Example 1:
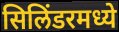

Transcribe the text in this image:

सिलिंडरमध्ये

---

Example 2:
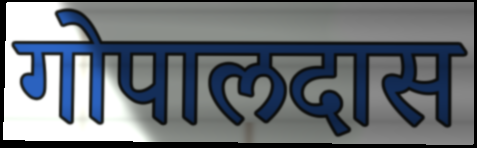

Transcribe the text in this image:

गोपालदास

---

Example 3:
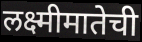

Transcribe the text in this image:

लक्ष्मीमातेची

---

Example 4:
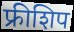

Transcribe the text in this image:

फ्रीशिप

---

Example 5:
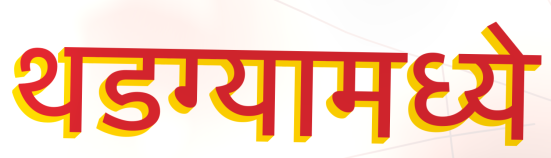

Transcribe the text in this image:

थडग्यामध्ये